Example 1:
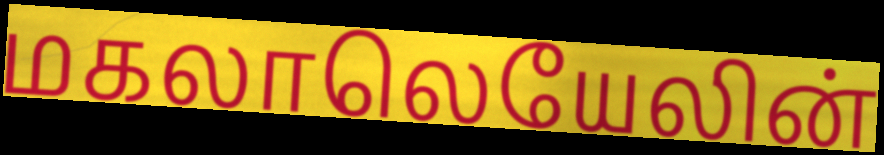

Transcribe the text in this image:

மகலாலெயேலின்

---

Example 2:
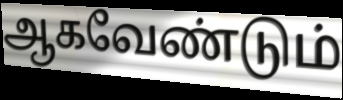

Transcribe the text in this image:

ஆகவேண்டும்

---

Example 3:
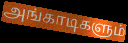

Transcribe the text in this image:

அங்காடிகளும்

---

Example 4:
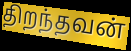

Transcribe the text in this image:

திறந்தவன்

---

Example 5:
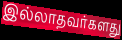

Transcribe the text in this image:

இல்லாதவர்களது